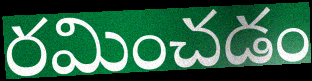
రమించడం